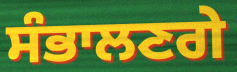
ਸੰਭਾਲਣਗੇ